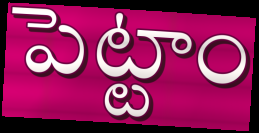
పెట్టాం